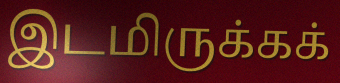
இடமிருக்கக்